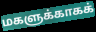
மகளுக்காகக்